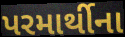
પરમાર્થીના